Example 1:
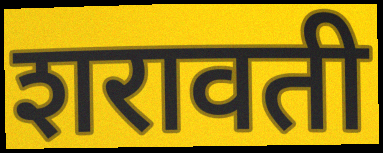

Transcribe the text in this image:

शरावती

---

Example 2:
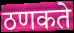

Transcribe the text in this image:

ठणकते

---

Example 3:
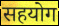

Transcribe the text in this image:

सहयोग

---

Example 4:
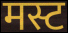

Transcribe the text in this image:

मस्ट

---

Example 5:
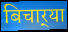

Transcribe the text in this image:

बिचार्या